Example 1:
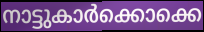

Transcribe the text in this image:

നാട്ടുകാർക്കൊക്കെ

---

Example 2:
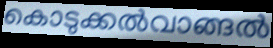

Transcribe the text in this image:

കൊടുക്കൽവാങ്ങൽ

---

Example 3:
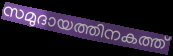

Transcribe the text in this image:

സമുദായത്തിനകത്ത്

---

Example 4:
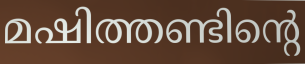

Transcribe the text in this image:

മഷിത്തണ്ടിന്റെ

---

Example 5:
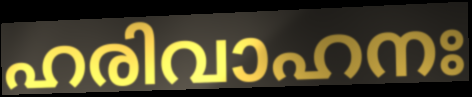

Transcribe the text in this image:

ഹരിവാഹനഃ